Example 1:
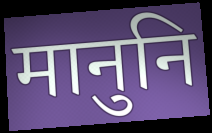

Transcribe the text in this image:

मानुनि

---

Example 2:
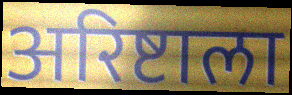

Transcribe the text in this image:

अरिष्टाला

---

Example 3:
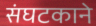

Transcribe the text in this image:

संघटकाने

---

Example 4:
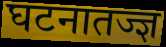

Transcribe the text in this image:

घटनातज्ज्ञ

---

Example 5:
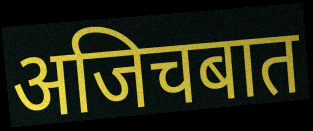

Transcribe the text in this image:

अजिचबात